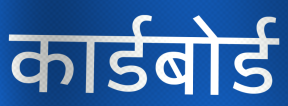
कार्डबोर्ड